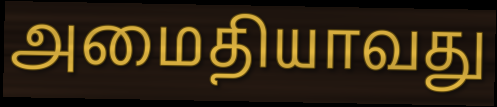
அமைதியாவது